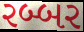
રબ્બર